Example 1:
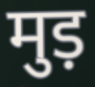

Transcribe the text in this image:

मुड़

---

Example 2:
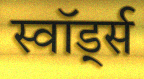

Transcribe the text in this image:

स्वॉर्ड्स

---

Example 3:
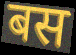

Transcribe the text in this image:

बस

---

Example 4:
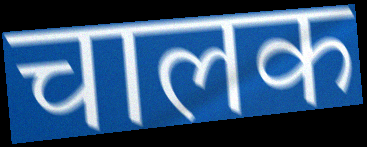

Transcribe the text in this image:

चालक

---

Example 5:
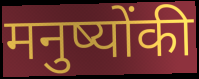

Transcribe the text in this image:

मनुष्योंकी